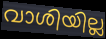
വാശിയില്ല